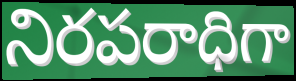
నిరపరాధిగా